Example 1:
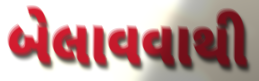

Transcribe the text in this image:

બેલાવવાથી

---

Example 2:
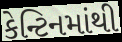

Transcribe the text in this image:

કેન્ટિનમાંથી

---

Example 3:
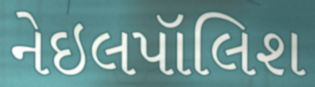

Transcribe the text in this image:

નેઇલપૉલિશ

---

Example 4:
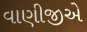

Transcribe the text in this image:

વાણીજીએ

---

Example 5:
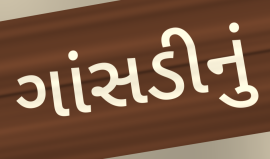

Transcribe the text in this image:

ગાંસડીનું